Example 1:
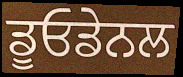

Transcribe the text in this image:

ਡੂਓਡੇਨਲ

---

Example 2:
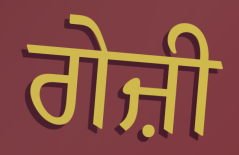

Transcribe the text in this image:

ਗੇਜ਼ੀ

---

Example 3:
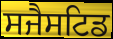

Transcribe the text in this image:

ਸਜੈਸਟਿਡ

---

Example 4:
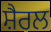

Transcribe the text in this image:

ਸ਼ੈਰਲ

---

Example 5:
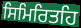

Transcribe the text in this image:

ਸਿਮਿਰਿਤਹਿ